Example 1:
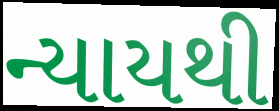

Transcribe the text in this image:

ન્યાયથી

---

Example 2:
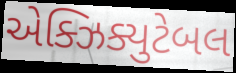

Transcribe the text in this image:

એક્ઝિક્યુટેબલ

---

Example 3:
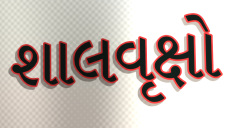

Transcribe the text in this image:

શાલવૃક્ષો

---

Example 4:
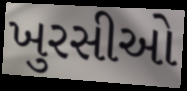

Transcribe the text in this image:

ખુરસીઓ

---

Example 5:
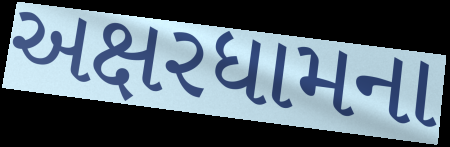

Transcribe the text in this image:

અક્ષરધામના